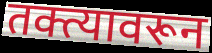
तक्त्यावरून